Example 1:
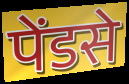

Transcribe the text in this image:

पेंडसे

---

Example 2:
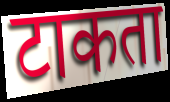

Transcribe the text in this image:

टाकता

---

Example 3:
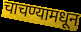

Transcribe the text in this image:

चाचण्यामधून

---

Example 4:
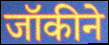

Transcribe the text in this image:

जॉकीने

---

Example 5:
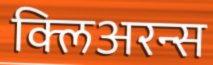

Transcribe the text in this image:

क्लिअरन्स